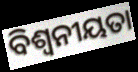
ବିଶ୍ୱନୀୟତା